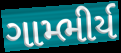
ગામ્ભીર્ય